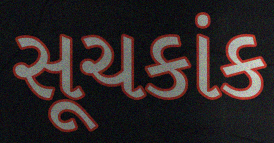
સૂચકાંક